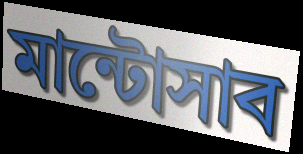
মান্টোসাব